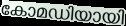
കോമഡിയായി